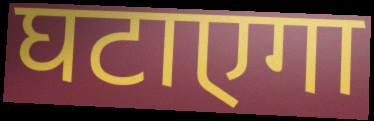
घटाएगा